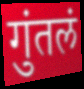
गुंतलं